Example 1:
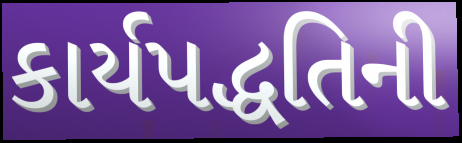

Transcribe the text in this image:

કાર્યપદ્ધતિની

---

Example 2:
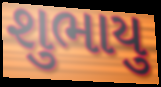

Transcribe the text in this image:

શુભાયુ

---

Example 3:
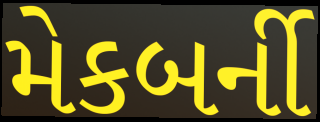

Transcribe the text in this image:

મેકબર્ની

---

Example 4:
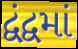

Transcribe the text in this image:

દ્વંદ્વમાં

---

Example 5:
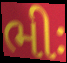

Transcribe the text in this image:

ભીઃ